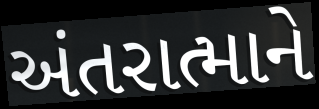
અંતરાત્માને